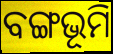
ବଙ୍ଗଭୂମି